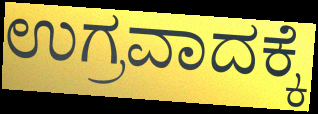
ಉಗ್ರವಾದಕ್ಕೆ